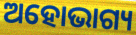
ଅହୋଭାଗ୍ୟ